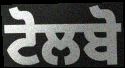
ਟੋਲਬੋ